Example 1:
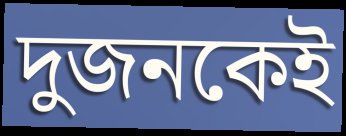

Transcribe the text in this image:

দুজনকেই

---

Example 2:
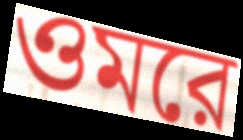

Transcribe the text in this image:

ওমরে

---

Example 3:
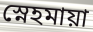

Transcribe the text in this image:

স্নেহমায়া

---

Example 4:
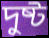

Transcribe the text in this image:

দুষ্ট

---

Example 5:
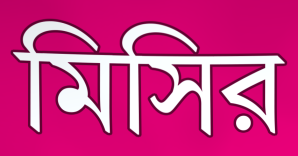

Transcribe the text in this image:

মিসির